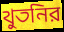
থুতনির